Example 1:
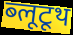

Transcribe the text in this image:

ब्‍लूटूथ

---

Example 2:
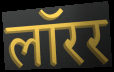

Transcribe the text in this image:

लॉरर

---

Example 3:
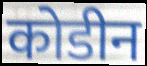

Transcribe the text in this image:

कोडीन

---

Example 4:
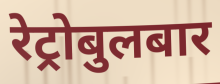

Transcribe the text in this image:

रेट्रोबुलबार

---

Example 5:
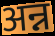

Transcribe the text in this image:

अन्न